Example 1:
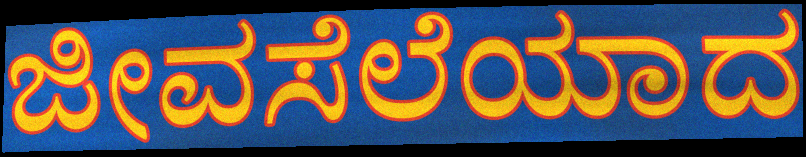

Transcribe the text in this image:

ಜೀವಸೆಲೆಯಾದ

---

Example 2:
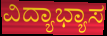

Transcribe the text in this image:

ವಿದ್ಯಾಭ್ಯಾಸ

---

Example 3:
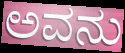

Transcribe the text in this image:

ಅವನು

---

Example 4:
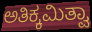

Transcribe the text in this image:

ಅತಿಕ್ಕಮಿತ್ವಾ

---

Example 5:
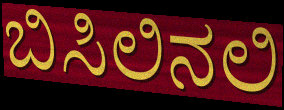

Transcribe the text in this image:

ಬಿಸಿಲಿನಲಿ